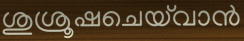
ശുശ്രൂഷചെയ്‌വാൻ